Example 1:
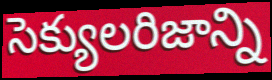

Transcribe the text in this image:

సెక్యులరిజాన్ని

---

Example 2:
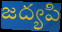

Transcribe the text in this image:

జద్యపి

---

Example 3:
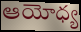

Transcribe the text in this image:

ఆయోధ్య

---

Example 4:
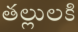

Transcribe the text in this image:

తల్లులకి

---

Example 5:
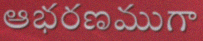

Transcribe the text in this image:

ఆభరణముగా